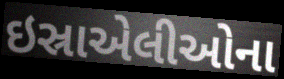
ઇસ્રાએલીઓના